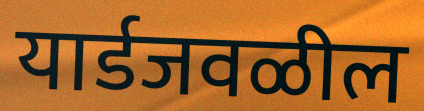
यार्डजवळील